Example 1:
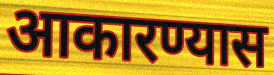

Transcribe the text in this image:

आकारण्यास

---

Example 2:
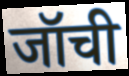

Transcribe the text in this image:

जॉची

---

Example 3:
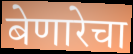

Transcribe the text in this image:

बेणारेचा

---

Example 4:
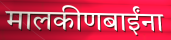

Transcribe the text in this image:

मालकीणबाईंना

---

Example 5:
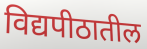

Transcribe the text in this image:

विद्यपीठातील